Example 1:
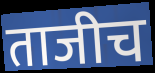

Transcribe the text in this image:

ताजीच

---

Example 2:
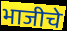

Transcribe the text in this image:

भाजीचे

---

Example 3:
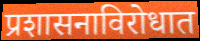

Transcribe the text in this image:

प्रशासनाविरोधात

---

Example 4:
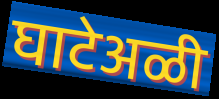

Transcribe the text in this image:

घाटेअळी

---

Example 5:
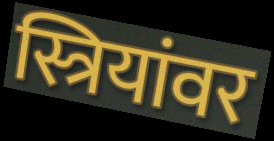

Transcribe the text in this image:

स्त्रियांवर